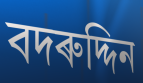
বদৰুদ্দিন